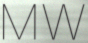
MW